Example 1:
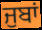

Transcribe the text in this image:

ਜੁਬਾਂ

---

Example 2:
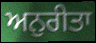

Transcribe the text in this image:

ਅਨੁਰੀਤਾ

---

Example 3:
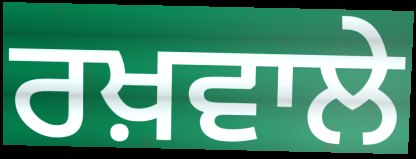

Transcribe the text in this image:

ਰਖ਼ਵਾਲੇ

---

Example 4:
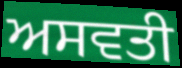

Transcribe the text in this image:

ਅਸਵਤੀ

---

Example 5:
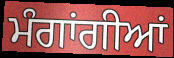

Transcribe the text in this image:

ਮੰਗਾਂਗੀਆਂ